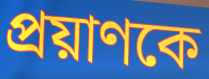
প্রয়াণকে